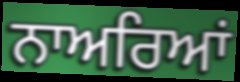
ਨਾਅਰਿਆਂ